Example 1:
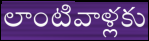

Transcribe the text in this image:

లాంటివాళ్లకు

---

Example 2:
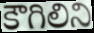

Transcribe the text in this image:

కౌగిలిని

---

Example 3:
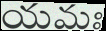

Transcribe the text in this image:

యమః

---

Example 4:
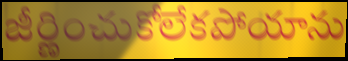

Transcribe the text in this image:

జీర్ణించుకోలేకపోయాను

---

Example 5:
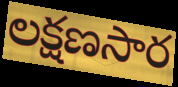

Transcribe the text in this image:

లక్షణసార